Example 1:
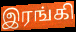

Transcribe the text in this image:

இரங்கி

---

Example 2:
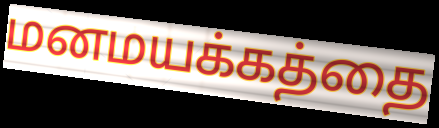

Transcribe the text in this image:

மனமயக்கத்தை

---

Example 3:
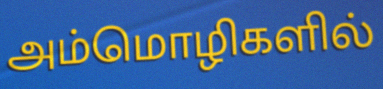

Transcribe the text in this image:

அம்மொழிகளில்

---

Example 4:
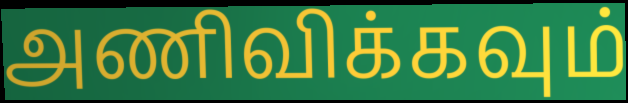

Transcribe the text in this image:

அணிவிக்கவும்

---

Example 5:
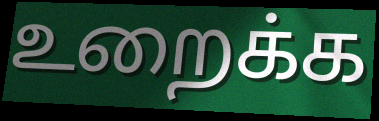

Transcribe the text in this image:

உறைக்க